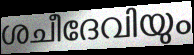
ശചീദേവിയും